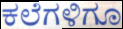
ಕಲೆಗಳಿಗೂ